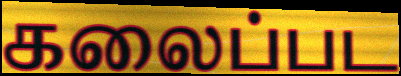
கலைப்பட